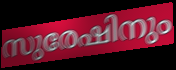
സുരേഷിനും